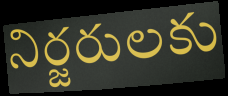
నిర్జరులకు